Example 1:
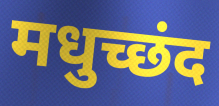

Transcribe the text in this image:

मधुच्छंद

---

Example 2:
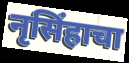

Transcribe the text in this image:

नृसिंहाचा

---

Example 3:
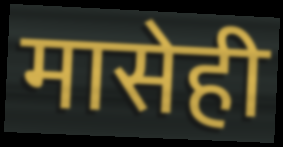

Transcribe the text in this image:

मासेही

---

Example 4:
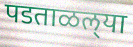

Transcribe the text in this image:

पडताळल्या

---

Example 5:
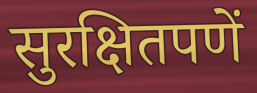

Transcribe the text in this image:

सुरक्षितपणें